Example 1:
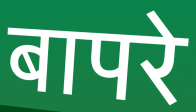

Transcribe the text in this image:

बापरे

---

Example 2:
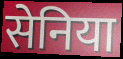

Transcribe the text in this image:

सेनिया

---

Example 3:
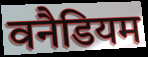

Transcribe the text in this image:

वनैडियम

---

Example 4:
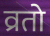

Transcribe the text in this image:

व्रतो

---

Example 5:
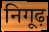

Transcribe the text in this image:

निगूढ़